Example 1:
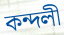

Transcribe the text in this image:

কন্দলী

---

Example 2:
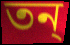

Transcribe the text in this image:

তন্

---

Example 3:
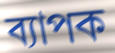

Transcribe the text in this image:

ব্যাপক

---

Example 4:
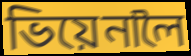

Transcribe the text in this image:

ভিয়েনালৈ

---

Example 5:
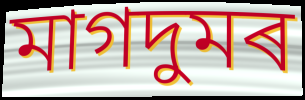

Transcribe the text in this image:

মাগদুমৰ